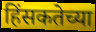
हिंसकतेच्या